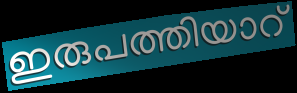
ഇരുപത്തിയാറ്